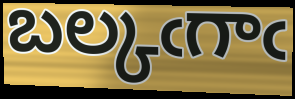
బల్కఁగాఁ